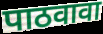
पाठवावा